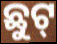
ଛୁଟ୍